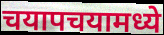
चयापचयामध्ये